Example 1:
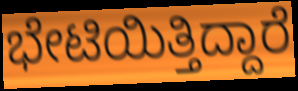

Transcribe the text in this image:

ಭೇಟಿಯಿತ್ತಿದ್ದಾರೆ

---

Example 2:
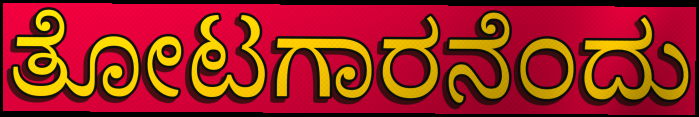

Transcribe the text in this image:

ತೋಟಗಾರನೆಂದು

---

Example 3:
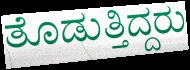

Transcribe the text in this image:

ತೊಡುತ್ತಿದ್ದರು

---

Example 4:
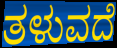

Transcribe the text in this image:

ತಳುವದೆ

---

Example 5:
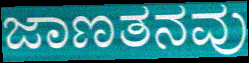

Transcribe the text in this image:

ಜಾಣತನವು